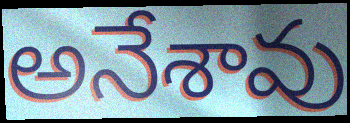
అనేశావు